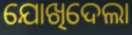
ଯୋଖିଦେଲା